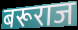
बरूराज